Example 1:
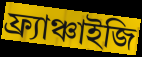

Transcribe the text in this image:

ফ্র্যাঞ্চাইজি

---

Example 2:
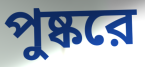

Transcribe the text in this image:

পুষ্করে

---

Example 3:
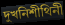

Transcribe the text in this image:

দুখনিশীথিনী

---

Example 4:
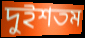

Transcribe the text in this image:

দুইশতম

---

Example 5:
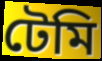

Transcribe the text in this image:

টেমি